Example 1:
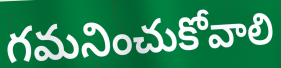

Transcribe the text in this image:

గమనించుకోవాలి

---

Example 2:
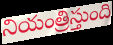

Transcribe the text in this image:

నియంత్రిస్తుంది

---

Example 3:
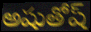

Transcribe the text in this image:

అషుతోష్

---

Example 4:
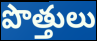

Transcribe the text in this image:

పొత్తులు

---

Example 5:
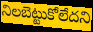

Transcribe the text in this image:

నిలబెట్టుకోలేదని